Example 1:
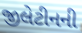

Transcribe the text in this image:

જીલેટીનની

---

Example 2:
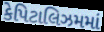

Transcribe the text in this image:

કેપિટાલિઝમમાં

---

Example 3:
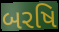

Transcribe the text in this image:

બરષિ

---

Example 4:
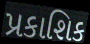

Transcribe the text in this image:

પ્રકાશિક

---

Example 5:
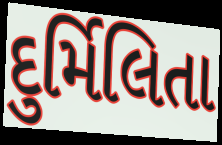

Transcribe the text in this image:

દુર્મિલિતા